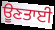
ਊਣਤਾਈ